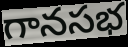
గానసభ